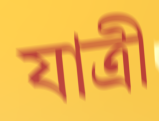
যাত্রী